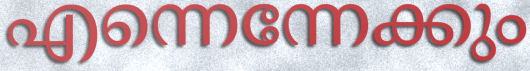
എന്നെന്നേക്കും